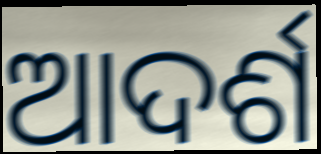
ଆଦର୍ଶ